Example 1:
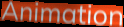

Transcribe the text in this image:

Animation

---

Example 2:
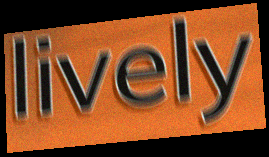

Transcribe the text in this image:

lively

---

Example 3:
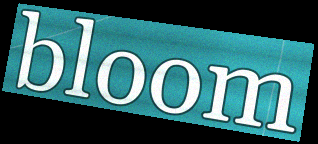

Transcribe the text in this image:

bloom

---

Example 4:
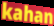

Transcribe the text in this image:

kahan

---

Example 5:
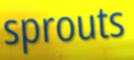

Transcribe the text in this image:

sprouts